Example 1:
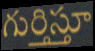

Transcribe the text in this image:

గుర్తిస్తూ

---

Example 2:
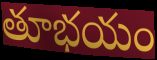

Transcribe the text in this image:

తూభయం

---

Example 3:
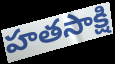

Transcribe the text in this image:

హతసాక్షి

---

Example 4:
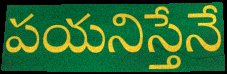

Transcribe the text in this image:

పయనిస్తేనే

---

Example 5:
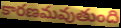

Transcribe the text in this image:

కారణమవుతుంది